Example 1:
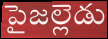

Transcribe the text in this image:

పైజల్లెడు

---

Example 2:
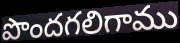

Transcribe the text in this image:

పొందగలిగాము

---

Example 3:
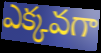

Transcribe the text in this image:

ఎక్కవగా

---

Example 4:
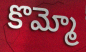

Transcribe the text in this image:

కొమ్మో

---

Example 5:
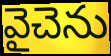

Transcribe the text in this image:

వైచెను